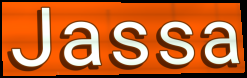
Jassa